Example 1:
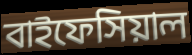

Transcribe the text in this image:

বাইফেসিয়াল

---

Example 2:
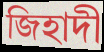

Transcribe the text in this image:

জিহাদী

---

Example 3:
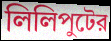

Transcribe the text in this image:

লিলিপুটের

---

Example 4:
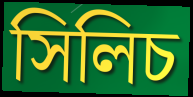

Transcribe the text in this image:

সিলিচ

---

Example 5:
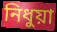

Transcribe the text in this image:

নিধুয়া